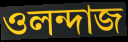
ওলন্দাজ